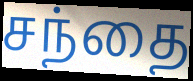
சந்தை